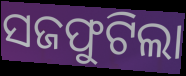
ସଜଫୁଟିଲା